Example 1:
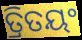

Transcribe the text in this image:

ତ୍ରିତୟଂ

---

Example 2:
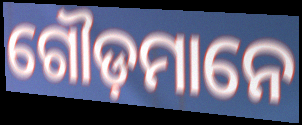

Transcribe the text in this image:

ଗୌଡ଼ମାନେ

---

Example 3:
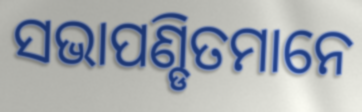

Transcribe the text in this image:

ସଭାପଣ୍ଡିତମାନେ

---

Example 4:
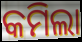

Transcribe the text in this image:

କମିଲା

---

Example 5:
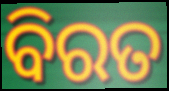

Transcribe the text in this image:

ବିରତ